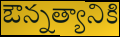
ఔన్నత్యానికి